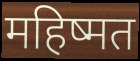
महिष्मत